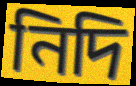
নিদি